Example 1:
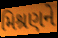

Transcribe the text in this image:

મિશ્રણને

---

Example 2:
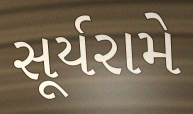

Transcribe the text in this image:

સૂર્યરામે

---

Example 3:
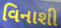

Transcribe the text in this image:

વિનાશી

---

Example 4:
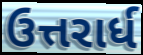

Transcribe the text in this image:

ઉત્તરાર્ધ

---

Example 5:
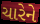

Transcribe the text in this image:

ચારેને